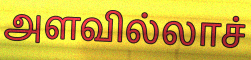
அளவில்லாச்